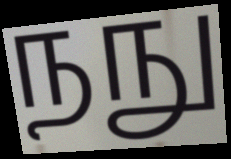
நநு